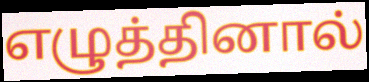
எழுத்தினால்